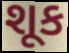
શૂક